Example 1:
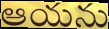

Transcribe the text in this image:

ఆయను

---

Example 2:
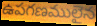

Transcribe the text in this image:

ఉపగణములైన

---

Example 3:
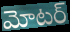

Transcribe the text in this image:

మోటర్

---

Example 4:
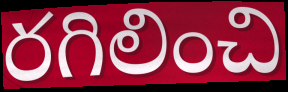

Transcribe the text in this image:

రగిలించి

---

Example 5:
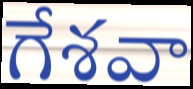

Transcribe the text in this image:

గేశవా